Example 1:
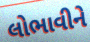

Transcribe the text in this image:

લોભાવીને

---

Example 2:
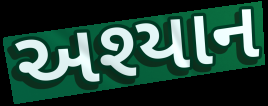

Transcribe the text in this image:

અશ્યાન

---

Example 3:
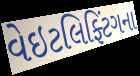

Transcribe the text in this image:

વેઇટલિફ્ટિંગના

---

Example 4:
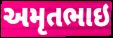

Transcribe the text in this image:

અમૃતભાઇ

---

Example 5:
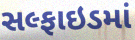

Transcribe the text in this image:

સલ્ફાઇડમાં